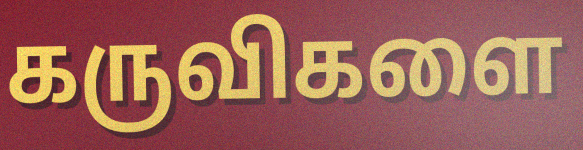
கருவிகளை